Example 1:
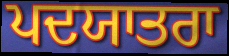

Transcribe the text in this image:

ਪਦਯਾਤਰਾ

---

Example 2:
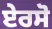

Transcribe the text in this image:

ਏਰਸੋ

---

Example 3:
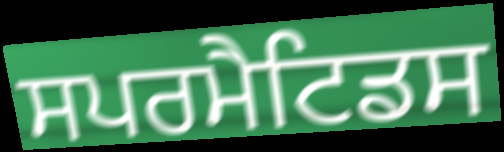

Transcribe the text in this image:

ਸਪਰਮੈਟਿਡਸ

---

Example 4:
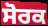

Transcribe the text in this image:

ਸੋਰਕ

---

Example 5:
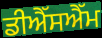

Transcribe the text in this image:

ਡੀਐੱਸਐੱਮ